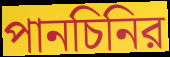
পানচিনির